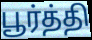
பூர்த்தி